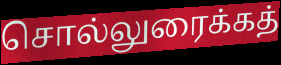
சொல்லுரைக்கத்